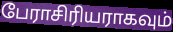
பேராசிரியராகவும்